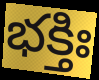
భక్తిః